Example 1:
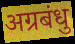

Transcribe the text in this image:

अग्रबंधु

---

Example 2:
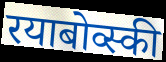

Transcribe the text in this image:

रयाबोव्स्की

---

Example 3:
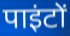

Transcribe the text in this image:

पाइंटों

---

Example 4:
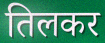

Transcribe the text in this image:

तिलकर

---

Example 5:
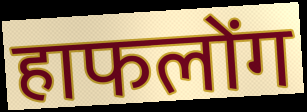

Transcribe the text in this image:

हाफलोंग